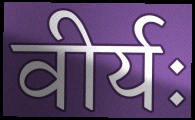
वीर्यः